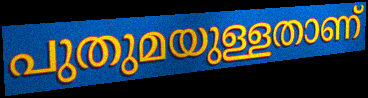
പുതുമയുള്ളതാണ്